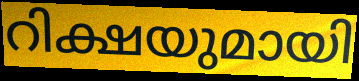
റിക്ഷയുമായി